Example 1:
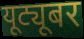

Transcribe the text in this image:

यूट्यूबर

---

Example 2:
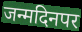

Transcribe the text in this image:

जन्मदिनपर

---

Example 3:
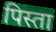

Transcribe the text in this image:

पिस्ता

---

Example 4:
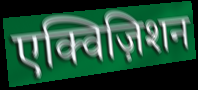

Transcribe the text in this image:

एक्विज़िशन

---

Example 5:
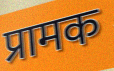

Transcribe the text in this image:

प्रामक